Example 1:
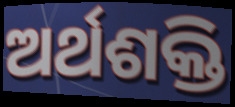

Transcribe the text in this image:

ଅର୍ଥଶକ୍ତି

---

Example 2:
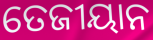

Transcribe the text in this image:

ତେଜୀୟାନ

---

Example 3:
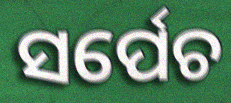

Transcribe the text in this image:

ସର୍ପେଚ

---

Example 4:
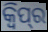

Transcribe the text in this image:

କ୍ଵିପ୍‌ର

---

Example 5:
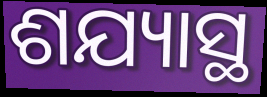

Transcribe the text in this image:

ଶଯ୍ୟାସ୍ଥ